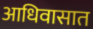
आधिवासात